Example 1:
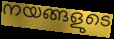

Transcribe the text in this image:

നയങ്ങളുടെ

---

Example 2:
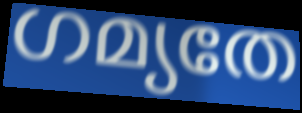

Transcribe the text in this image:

ഗമ്യതേ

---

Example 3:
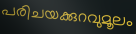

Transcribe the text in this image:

പരിചയക്കുറവുമൂലം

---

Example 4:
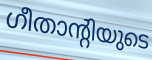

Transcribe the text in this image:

ഗീതാന്റിയുടെ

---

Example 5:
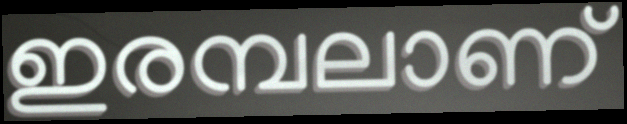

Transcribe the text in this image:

ഇരമ്പലാണ്